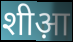
शीआ़